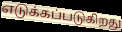
எடுக்கப்படுகிறது